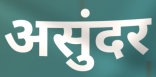
असुंदर